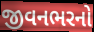
જીવનભરનો